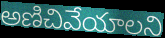
అణిచివేయాలని